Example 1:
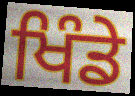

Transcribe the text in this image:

ਖਿੰਡੇ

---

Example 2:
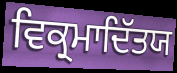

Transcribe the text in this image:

ਵਿਕ੍ਰਮਾਦਿੱਤਯ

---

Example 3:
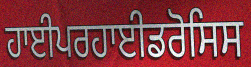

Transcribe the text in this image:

ਹਾਈਪਰਹਾਈਡਰੋਸਿਸ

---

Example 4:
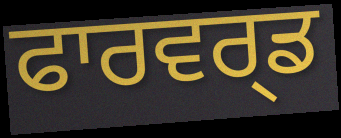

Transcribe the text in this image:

ਫਾਰਵਰ੍ਡ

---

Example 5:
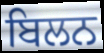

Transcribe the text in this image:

ਬਿਲਨ